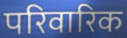
परिवारिक